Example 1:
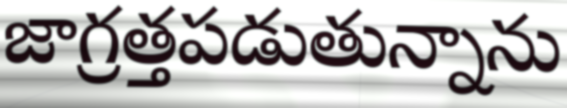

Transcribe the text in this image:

జాగ్రత్తపడుతున్నాను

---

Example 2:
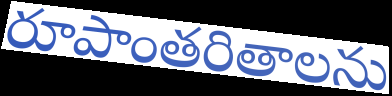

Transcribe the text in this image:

రూపాంతరితాలను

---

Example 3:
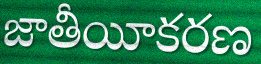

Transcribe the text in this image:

జాతీయీకరణ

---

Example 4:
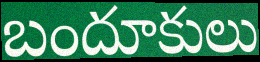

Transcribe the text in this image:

బందూకులు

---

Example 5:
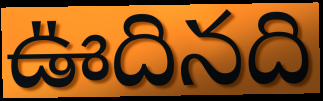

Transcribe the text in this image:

ఊదినది